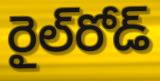
రైల్‌రోడ్